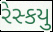
રેસ્કયુ